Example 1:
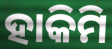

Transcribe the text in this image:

ହାକିମି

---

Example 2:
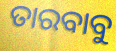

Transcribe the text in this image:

ତାରବାବୁ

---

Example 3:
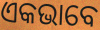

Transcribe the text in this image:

ଏକଭାବେ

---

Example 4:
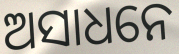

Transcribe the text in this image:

ଅସାଧନେ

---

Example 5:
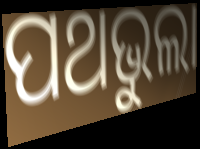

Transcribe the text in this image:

ପଥଭୁଲା